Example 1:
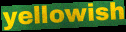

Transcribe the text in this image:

yellowish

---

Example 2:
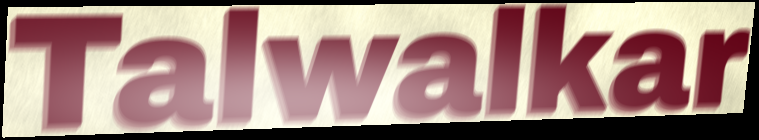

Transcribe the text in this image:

Talwalkar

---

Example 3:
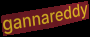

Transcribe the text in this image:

gannareddy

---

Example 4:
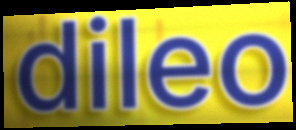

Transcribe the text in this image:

dileo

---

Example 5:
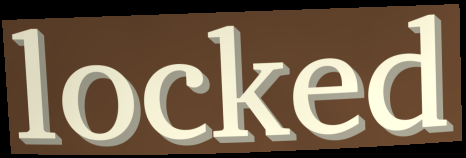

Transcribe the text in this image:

locked